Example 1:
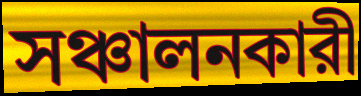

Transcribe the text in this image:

সঞ্চালনকারী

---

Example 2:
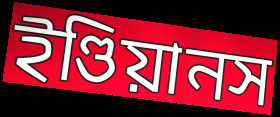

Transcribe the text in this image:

ইণ্ডিয়ানস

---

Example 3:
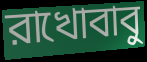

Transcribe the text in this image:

রাখোবাবু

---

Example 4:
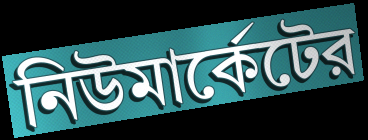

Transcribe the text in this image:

নিউমার্কেটের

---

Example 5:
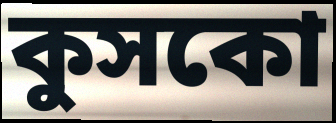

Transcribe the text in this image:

কুসকো